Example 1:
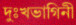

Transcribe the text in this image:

দুঃখভাগিনী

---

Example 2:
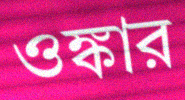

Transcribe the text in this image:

ওঙ্কার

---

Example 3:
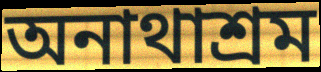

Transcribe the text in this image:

অনাথাশ্রম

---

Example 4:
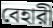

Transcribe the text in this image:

বেহারী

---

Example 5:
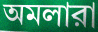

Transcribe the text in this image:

অমলারা